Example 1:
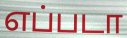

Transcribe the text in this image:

எப்படா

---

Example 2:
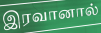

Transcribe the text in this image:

இரவானால்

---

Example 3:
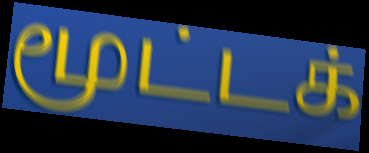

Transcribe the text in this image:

மூட்டக்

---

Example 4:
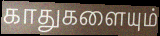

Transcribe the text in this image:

காதுகளையும்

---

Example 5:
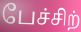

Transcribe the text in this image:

பேச்சிற்